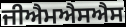
ਜੀਐਮਐਸਐਸ